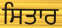
ਸਿਤਾਰ